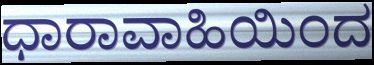
ಧಾರಾವಾಹಿಯಿಂದ